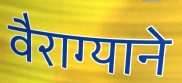
वैराग्याने